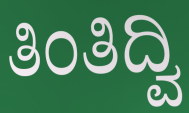
ತಿಂತಿದ್ವಿ